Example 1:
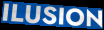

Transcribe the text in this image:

ILUSION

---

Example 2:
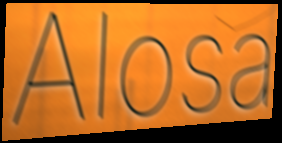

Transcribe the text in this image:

Alosa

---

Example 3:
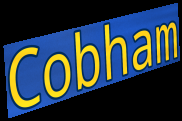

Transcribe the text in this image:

Cobham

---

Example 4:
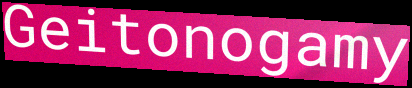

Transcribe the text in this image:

Geitonogamy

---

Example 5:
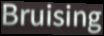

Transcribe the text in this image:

Bruising